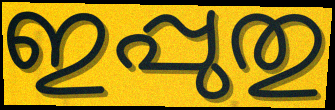
ഇപ്പുതു